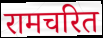
रामचरित